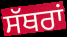
ਸੱਥਰਾਂ